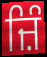
ਜ਼ਿੰ